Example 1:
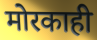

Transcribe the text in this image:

मोरकाही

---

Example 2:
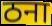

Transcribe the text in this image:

ठना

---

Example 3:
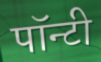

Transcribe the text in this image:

पॉन्टी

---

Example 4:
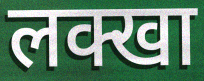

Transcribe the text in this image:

लक्खा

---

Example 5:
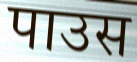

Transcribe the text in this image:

पाउस